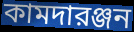
কামদারঞ্জন